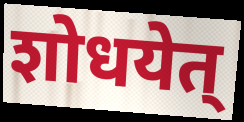
शोधयेत्